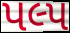
પલ્પ